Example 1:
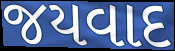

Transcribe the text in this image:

જયવાદ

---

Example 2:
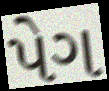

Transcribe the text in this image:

પેગ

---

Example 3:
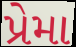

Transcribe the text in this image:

પ્રેમા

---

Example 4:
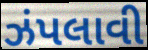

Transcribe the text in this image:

ઝંપલાવી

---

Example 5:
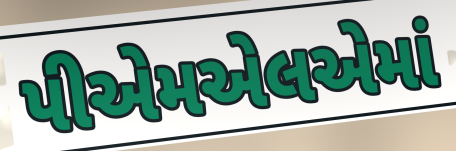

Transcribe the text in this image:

પીએમએલએમાં